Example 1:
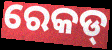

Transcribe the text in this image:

ରେକଡ୍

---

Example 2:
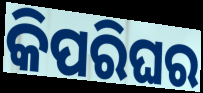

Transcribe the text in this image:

କିପରିଘର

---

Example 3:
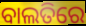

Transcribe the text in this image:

ବାଲତିରେ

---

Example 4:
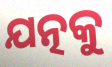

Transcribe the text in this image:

ଯତ୍ନକୁ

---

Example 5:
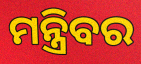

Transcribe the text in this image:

ମନ୍ତ୍ରିବର